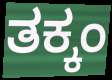
ತಕ್ಕಂ